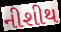
નીશીથ